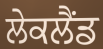
ਲੇਕਲੈਂਡ